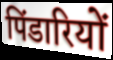
पिंडारियों